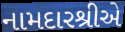
નામદારશ્રીએ